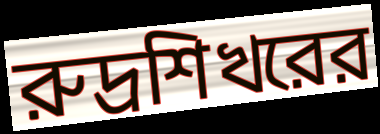
রুদ্রশিখরের